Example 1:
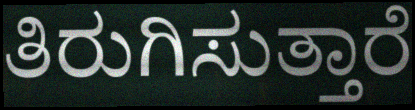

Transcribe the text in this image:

ತಿರುಗಿಸುತ್ತಾರೆ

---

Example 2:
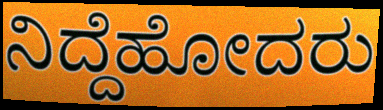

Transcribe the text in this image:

ನಿದ್ದೆಹೋದರು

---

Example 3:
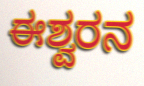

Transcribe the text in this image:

ಈಶ್ವರನ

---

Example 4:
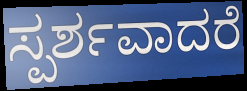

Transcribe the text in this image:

ಸ್ಪರ್ಶವಾದರೆ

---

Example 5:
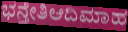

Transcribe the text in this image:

ಭನ್ತೇತಿಆದಿಮಾಹ